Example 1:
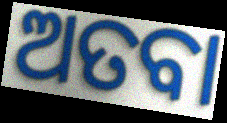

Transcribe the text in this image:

ଅତବା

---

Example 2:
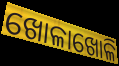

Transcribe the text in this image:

ଖୋଳାଖୋଳି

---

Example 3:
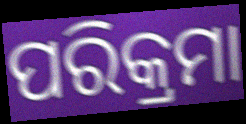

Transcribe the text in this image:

ପରିକ୍ରମା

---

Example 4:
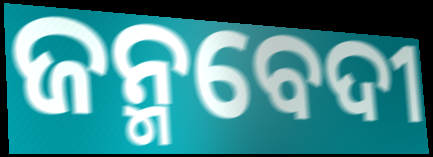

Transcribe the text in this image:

ଜନ୍ମବେଦୀ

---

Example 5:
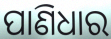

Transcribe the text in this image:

ପାଣିଧାର